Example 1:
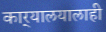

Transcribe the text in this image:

कार्यालयालाही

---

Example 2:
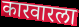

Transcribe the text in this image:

कारवारला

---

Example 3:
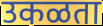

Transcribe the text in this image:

उकळता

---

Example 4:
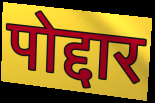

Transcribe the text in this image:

पोद्दार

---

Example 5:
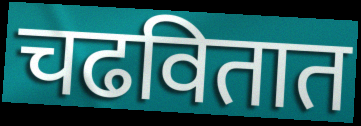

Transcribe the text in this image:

चढवितात